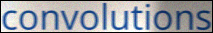
convolutions